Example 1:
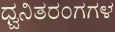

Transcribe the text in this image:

ಧ್ವನಿತರಂಗಗಳ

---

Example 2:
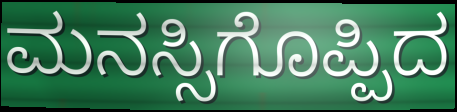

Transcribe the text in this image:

ಮನಸ್ಸಿಗೊಪ್ಪಿದ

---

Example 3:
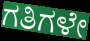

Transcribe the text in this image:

ಗತಿಗಳೇ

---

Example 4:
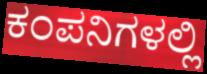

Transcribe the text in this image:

ಕಂಪನಿಗಳಲ್ಲಿ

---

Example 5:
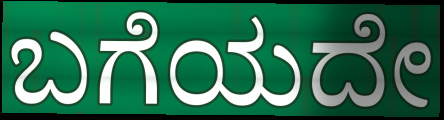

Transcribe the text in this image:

ಬಗೆಯದೇ